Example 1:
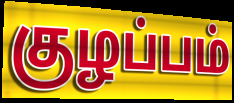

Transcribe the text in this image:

குழப்பம்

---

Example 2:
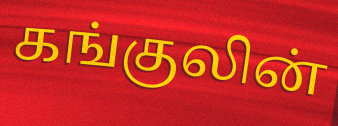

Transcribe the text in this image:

கங்குலின்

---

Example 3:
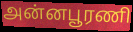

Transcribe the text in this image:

அன்னபூரணி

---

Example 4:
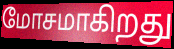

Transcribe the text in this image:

மோசமாகிறது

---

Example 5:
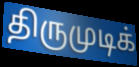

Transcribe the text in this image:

திருமுடிக்